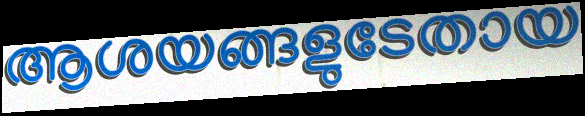
ആശയങ്ങളുടേതായ